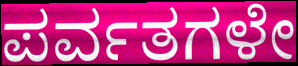
ಪರ್ವತಗಳೇ